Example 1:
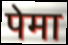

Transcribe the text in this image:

पेमा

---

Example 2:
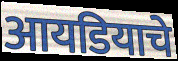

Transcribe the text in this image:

आयडियाचे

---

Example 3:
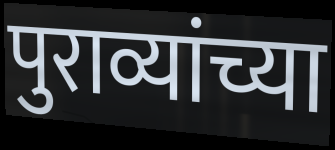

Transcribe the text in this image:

पुराव्यांच्या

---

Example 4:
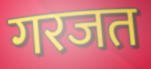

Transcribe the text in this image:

गरजत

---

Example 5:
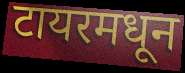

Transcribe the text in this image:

टायरमधून